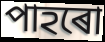
পাহৰো